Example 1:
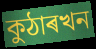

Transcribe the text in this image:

কুঠাৰখন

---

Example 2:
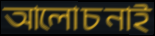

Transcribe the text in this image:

আলোচনাই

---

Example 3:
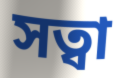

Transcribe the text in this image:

সত্বা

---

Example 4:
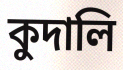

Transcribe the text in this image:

কুদালি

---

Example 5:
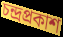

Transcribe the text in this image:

চন্দ্ৰপ্ৰকাশ